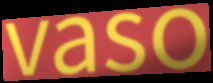
vaso